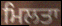
ਮਿਲਤਾ